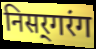
निसर्गरंग